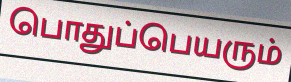
பொதுப்பெயரும்